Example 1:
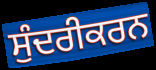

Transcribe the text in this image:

ਸੁੰਦਰੀਕਰਨ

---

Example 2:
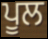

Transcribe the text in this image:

ਪੂਲ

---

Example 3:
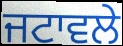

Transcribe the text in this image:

ਜਟਾਵਲੇ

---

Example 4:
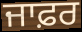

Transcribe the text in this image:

ਜਾਫ਼ਰ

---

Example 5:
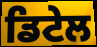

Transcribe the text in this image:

ਡਿਟੇਲ